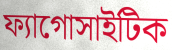
ফ্যাগোসাইটিক